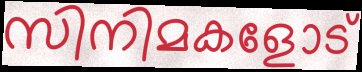
സിനിമകളോട്